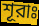
শূরাঃ